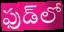
ఫుడ్‌లో